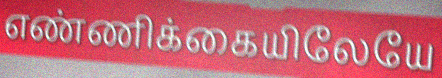
எண்ணிக்கையிலேயே